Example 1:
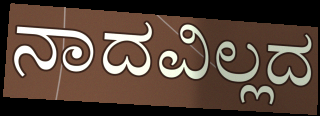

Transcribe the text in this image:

ನಾದವಿಲ್ಲದ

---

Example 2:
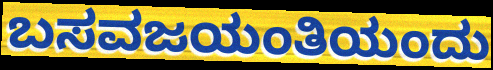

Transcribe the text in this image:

ಬಸವಜಯಂತಿಯಂದು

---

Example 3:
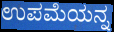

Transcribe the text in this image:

ಉಪಮೆಯನ್ನ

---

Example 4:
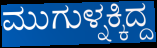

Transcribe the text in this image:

ಮುಗುಳ್ನಕ್ಕಿದ್ದ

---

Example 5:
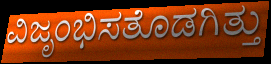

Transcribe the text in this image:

ವಿಜೃಂಭಿಸತೊಡಗಿತ್ತು